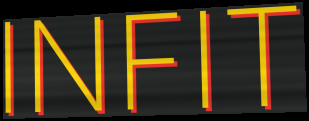
INFIT